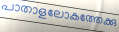
പാതാളലോകത്തേക്കു